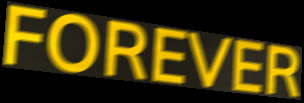
FOREVER